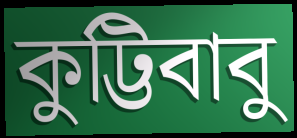
কুট্টিবাবু